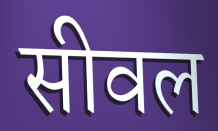
सीवल